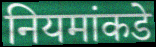
नियमांकडे